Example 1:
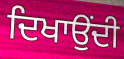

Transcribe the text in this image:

ਦਿਖਾਉਂਦੀ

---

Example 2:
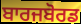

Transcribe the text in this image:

ਬਾਰਜਬੋਰਡ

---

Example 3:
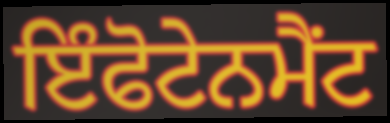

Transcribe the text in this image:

ਇੰਫੋਟੇਨਮੈਂਟ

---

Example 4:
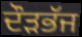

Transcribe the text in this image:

ਦੌੜਭੱਜ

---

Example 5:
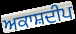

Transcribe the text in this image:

ਅਕਾਸ਼ਦੀਪ